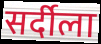
सर्दीला